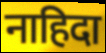
नाहिदा